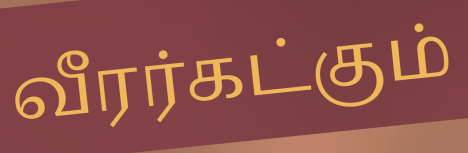
வீரர்கட்கும்